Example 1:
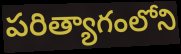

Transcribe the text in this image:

పరిత్యాగంలోని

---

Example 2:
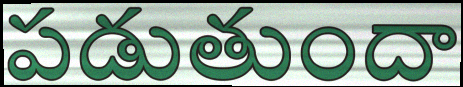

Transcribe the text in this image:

పడుతుందా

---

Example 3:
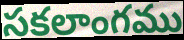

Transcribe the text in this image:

సకలాంగము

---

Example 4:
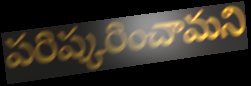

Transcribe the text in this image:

పరిష్కరించామని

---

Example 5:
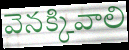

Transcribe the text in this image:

వెనక్కివాలి